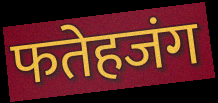
फतेहजंग